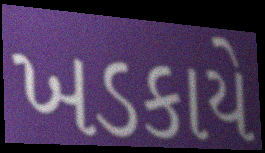
ખડકાયે